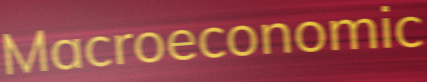
Macroeconomic